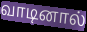
வாடினால்